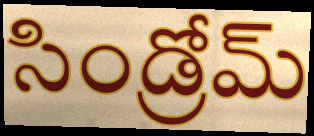
సిండ్రోమ్